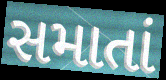
સમાતાં